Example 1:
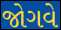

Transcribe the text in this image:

જોગવે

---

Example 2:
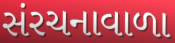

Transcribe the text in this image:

સંરચનાવાળા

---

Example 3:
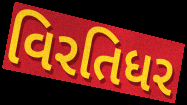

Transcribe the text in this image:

વિરતિધર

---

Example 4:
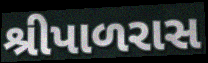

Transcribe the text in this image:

શ્રીપાળરાસ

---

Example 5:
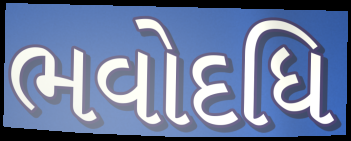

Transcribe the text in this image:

ભવોદધિ